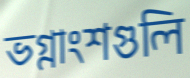
ভগ্নাংশগুলি